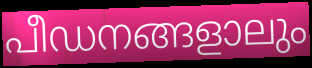
പീഡനങ്ങളാലും